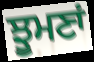
ਝੂਮਣਾਂ